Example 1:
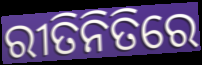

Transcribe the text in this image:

ରୀତିନିତିରେ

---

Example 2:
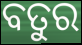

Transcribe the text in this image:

ବତୁର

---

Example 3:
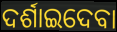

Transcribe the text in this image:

ଦର୍ଶାଇଦେବା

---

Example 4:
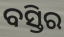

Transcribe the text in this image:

ବସ୍ତିର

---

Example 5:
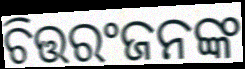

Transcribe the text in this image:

ଚିତ୍ତରଂଜନଙ୍କ